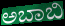
ಅಬಾಬಿ